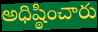
అధిష్ఠించారు